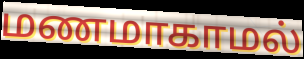
மணமாகாமல்